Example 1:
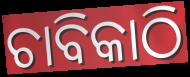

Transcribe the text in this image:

ଚାବିକାଠି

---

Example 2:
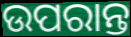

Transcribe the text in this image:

ଉପରାନ୍ତ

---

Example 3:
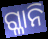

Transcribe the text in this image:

ଗ୍ଳାନି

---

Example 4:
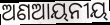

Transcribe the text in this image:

ଅଣଆୟନୀୟ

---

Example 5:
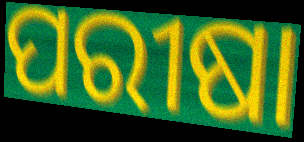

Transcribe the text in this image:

ପରୀଷା